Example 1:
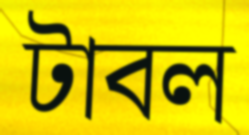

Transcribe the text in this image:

টাবল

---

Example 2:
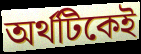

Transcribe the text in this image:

অর্থটিকেই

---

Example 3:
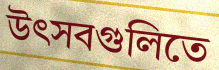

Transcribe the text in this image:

উৎসবগুলিতে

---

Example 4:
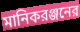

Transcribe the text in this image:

মানিকরঞ্জনের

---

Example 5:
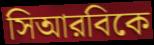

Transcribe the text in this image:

সিআরবিকে